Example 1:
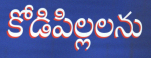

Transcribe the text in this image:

కోడిపిల్లలను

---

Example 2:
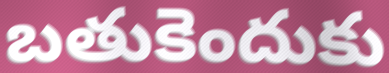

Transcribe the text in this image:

బతుకెందుకు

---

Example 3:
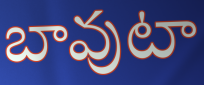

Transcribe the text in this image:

బావుటా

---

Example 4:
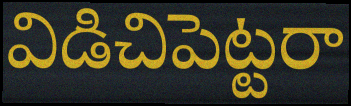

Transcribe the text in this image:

విడిచిపెట్టరా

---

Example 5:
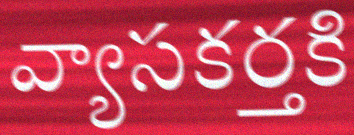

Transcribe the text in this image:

వ్యాసకర్తకి